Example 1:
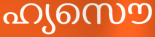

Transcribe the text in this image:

ഹ്യസൌ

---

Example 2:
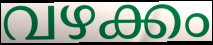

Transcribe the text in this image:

വഴക്കം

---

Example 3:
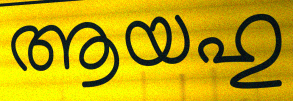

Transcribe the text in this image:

ആയഹു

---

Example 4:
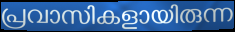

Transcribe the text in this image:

പ്രവാസികളായിരുന്ന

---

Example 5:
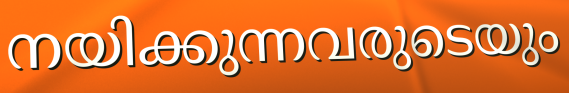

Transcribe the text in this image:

നയിക്കുന്നവരുടെയും